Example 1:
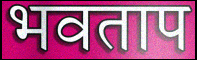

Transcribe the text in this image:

भवताप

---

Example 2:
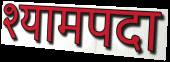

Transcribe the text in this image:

श्यामपदा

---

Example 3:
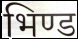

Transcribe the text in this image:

भिण्ड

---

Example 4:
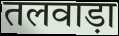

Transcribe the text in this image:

तलवाड़ा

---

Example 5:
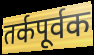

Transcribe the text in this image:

तर्कपूर्वक